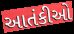
આતંકીઓ